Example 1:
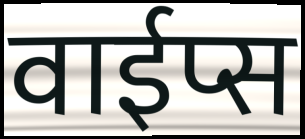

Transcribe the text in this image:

वाईप्स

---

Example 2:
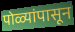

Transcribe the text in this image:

पोळ्यांपासून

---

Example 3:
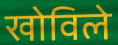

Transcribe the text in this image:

खोविले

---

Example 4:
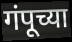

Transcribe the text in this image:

गंपूच्या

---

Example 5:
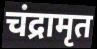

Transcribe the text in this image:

चंद्रामृत